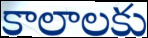
కాలాలకు